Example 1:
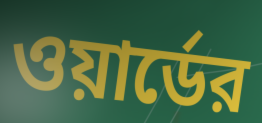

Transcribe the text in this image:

ওয়ার্ডের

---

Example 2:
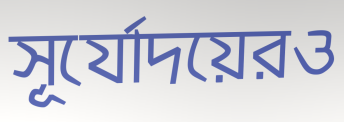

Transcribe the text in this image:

সূর্যোদয়েরও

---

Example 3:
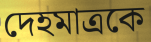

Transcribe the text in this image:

দেহমাত্রকে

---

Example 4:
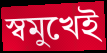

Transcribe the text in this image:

স্বমুখেই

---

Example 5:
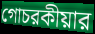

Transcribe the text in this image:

গোচরকীয়ার